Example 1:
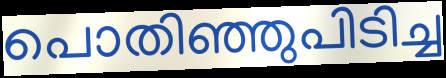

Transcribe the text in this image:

പൊതിഞ്ഞുപിടിച്ച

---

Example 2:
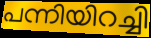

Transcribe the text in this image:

പന്നിയിറച്ചി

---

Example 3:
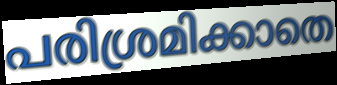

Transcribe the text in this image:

പരിശ്രമിക്കാതെ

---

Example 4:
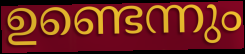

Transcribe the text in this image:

ഉണ്ടെന്നും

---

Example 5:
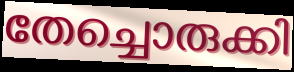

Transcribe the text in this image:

തേച്ചൊരുക്കി